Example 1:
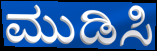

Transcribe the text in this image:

ಮುಡಿಸಿ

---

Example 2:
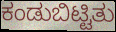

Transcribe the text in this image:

ಕಂಡುಬಿಟ್ಟಿತು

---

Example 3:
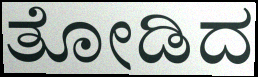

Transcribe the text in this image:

ತೋಡಿದ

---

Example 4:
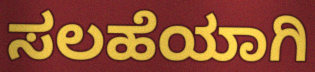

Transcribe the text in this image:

ಸಲಹೆಯಾಗಿ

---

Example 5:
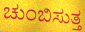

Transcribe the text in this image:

ಚುಂಬಿಸುತ್ತ